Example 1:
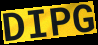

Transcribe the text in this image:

DIPG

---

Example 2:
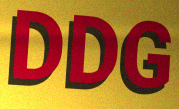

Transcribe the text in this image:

DDG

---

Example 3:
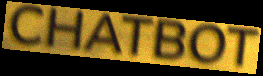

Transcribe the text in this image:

CHATBOT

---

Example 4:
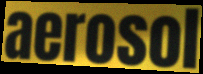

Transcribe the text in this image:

aerosol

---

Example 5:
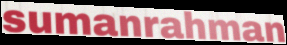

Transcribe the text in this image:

sumanrahman